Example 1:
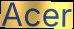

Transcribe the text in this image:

Acer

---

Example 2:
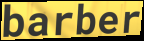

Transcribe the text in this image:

barber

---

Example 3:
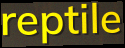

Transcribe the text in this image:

reptile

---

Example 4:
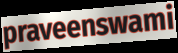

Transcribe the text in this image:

praveenswami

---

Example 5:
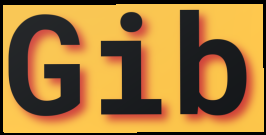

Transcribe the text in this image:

Gib